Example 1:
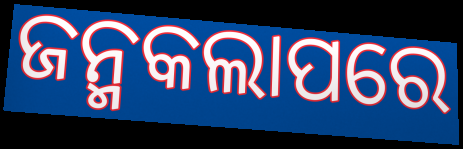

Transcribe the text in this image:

ଜନ୍ମକଲାପରେ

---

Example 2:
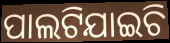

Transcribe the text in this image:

ପାଲଟିଯାଇଚି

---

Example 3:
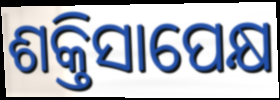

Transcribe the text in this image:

ଶକ୍ତିସାପେକ୍ଷ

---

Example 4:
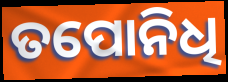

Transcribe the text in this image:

ତପୋନିଧି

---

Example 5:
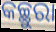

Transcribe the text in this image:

କଚ୍ଛୁରା